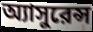
অ্যাসুরেন্স